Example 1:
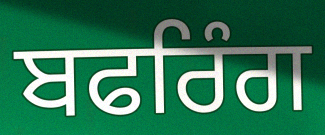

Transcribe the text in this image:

ਬਫਰਿੰਗ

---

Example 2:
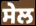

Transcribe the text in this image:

ਸੇਲ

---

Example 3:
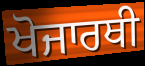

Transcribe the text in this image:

ਖੋਜਾਰਥੀ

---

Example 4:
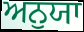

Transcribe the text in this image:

ਅਨੁਯਾ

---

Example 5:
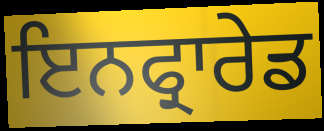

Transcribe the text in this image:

ਇਨਫ੍ਰਾਰੇਡ